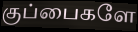
குப்பைகளே